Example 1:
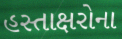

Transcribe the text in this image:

હસ્તાક્ષરોના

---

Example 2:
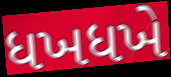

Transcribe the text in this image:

ધખધખે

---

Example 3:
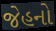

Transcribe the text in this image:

જેહનો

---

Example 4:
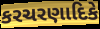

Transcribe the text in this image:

કરચરણાદિકે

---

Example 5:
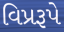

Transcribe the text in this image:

વિપ્રરૂપે